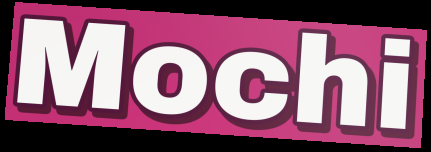
Mochi